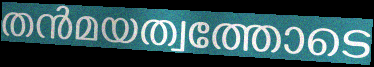
തൻമയത്വത്തോടെ